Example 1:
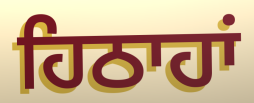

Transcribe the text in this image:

ਹਿਠਾਹਾਂ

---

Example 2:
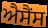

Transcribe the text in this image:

ਐਸੈਂਸ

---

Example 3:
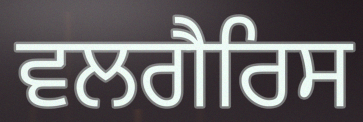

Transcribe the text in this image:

ਵਲਗੈਰਿਸ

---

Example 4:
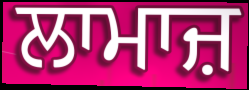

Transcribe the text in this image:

ਲਾਮਾਜ਼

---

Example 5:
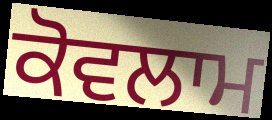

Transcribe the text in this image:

ਕੋਵਲਾਮ